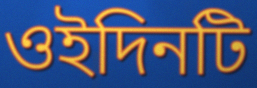
ওইদিনটি